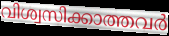
വിശ്വസിക്കാത്തവർ